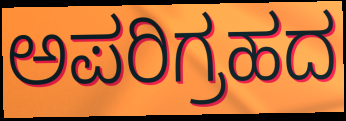
ಅಪರಿಗ್ರಹದ